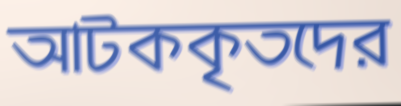
আটককৃতদের